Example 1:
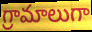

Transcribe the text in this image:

గ్రామాలుగా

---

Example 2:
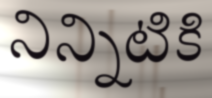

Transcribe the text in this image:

నిన్నిటికి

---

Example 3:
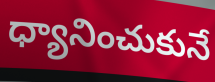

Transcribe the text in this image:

ధ్యానించుకునే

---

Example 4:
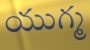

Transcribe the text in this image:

యుగ్మ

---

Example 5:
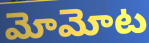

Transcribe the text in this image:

మోమోట